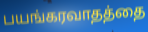
பயங்கரவாதத்தை